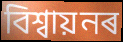
বিশ্বায়নৰ